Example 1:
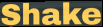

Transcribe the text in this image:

Shake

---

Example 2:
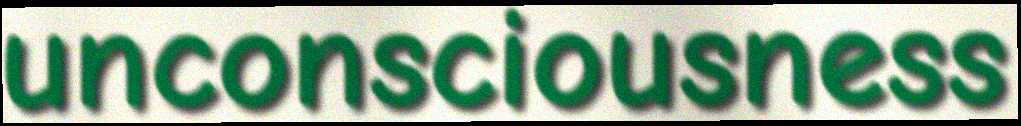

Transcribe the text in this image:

unconsciousness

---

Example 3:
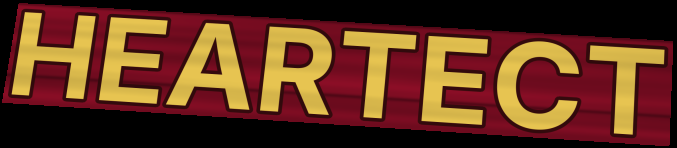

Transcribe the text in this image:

HEARTECT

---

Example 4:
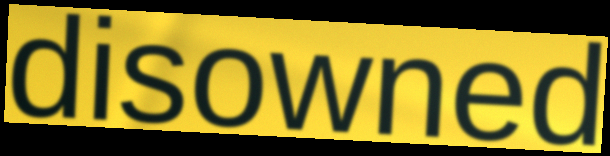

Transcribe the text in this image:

disowned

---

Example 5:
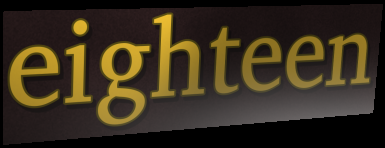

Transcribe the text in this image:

eighteen